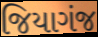
જિયાગંજ